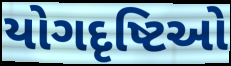
યોગદૃષ્ટિઓ